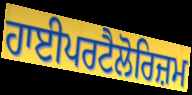
ਹਾਈਪਰਟੈਲੋਰਿਜ਼ਮ